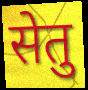
सेतु